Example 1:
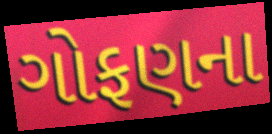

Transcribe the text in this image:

ગોફણના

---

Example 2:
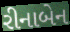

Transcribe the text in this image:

રીનાબેન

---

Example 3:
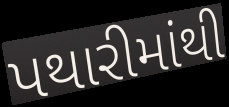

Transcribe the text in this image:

પથારીમાંથી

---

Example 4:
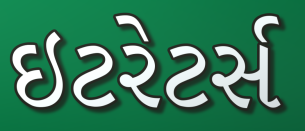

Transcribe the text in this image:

ઇટરેટર્સ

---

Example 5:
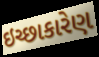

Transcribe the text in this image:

ઇચ્છાકારેણ